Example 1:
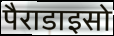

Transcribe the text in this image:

पैराडाइसो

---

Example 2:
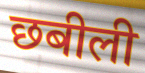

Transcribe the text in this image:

छबीली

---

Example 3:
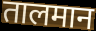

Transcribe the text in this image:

तालमान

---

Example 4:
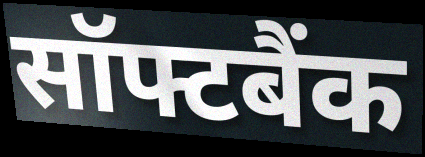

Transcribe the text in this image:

सॉफ्टबैंक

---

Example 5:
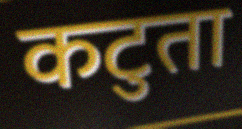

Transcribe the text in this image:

कटुता